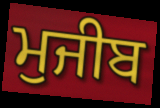
ਮੁਜੀਬ